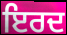
ਇਰਦ